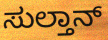
ಸುಲ್ತಾನ್